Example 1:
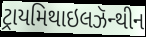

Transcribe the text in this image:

ટ્રાયમિથાઇલઝૅન્થીન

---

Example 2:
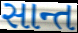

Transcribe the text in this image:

સાન્ત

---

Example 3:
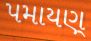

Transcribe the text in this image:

પમાયણ્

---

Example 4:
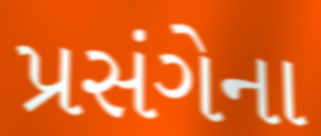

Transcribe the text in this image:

પ્રસંગેના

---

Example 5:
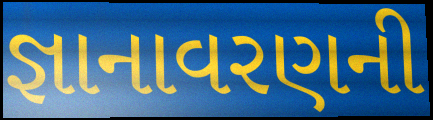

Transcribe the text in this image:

જ્ઞાનાવરણની